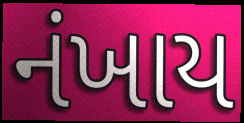
નંખાય